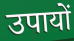
उपायों